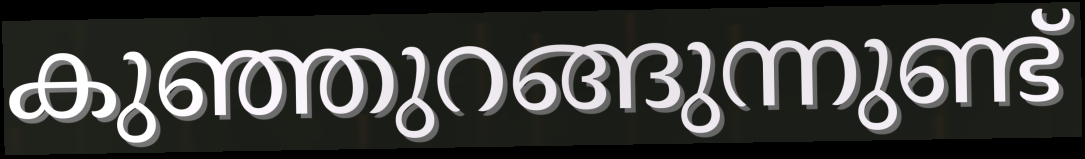
കുഞ്ഞുറങ്ങുന്നുണ്ട്